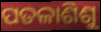
ପତଳାଶିଶୁ